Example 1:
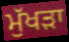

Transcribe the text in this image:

ਮੁੱਖੜਾ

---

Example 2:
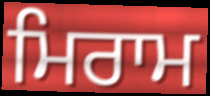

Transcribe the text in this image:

ਮਿਰਾਮ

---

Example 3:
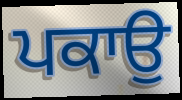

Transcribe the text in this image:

ਪਕਾਉ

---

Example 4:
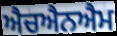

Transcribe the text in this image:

ਐਚਐਨਐਮ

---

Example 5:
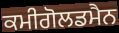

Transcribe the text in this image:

ਕਮੀਗੋਲਡਮੈਨ